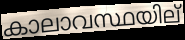
കാലാവസ്ഥയില്